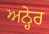
ਅਨ੍ਹੇਰ